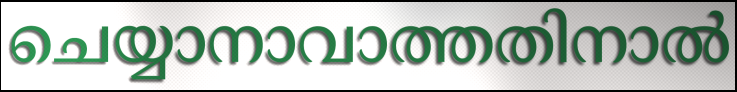
ചെയ്യാനാവാത്തതിനാൽ